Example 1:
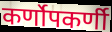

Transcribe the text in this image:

कर्णोपकर्णी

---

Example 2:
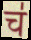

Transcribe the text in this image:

च॑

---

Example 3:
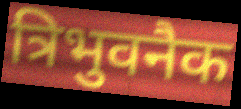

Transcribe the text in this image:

त्रिभुवनैक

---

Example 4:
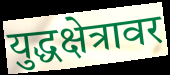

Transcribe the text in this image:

युद्धक्षेत्रावर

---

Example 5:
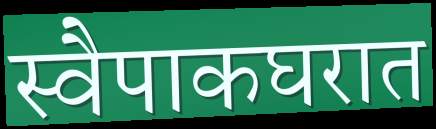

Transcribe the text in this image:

स्वैपाकघरात